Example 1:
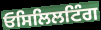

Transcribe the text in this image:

ਓਸਿਲਿਲਟਿੰਗ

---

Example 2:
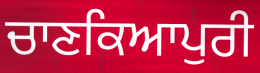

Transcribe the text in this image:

ਚਾਣਕਿਆਪੁਰੀ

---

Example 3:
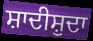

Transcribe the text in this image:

ਸ਼ਾਦੀਸ਼ੁਦਾ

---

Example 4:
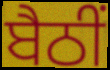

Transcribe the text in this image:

ਬੈਠੀਂ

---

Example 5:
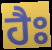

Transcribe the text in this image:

ਹੈਃ